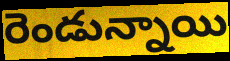
రెండున్నాయి